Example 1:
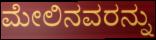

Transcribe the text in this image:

ಮೇಲಿನವರನ್ನು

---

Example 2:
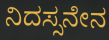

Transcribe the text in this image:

ನಿದಸ್ಸನೇನ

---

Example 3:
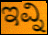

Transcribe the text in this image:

ಇವ್ನಿ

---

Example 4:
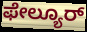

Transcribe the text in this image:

ಫೇಲ್ಯೂರ್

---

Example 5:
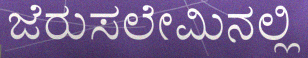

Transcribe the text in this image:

ಜೆರುಸಲೇಮಿನಲ್ಲಿ